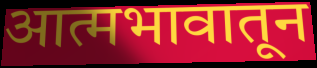
आत्मभावातून